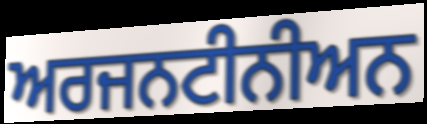
ਅਰਜਨਟੀਨੀਅਨ